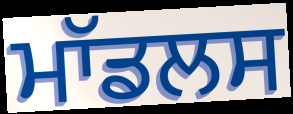
ਮਾੱਡਲਸ